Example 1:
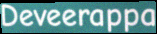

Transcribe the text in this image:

Deveerappa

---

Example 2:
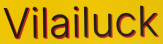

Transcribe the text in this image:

Vilailuck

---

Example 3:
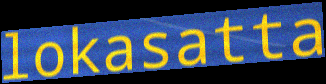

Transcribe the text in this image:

lokasatta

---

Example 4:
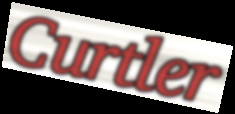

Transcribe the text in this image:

Curtler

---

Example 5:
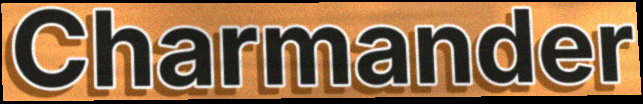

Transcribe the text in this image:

Charmander